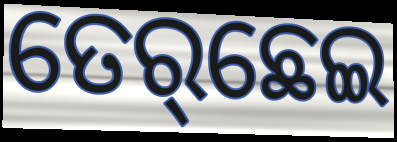
ତେର୍‌ଛେଇ